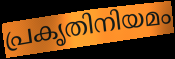
പ്രകൃതിനിയമം